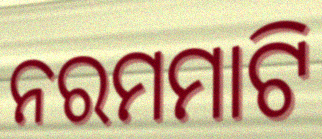
ନରମମାଟି